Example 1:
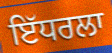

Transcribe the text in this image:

ਇੱਧਰਲਾ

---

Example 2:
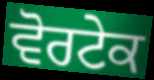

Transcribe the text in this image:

ਵੋਰਟੇਕ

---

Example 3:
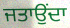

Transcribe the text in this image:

ਜਤਾਉਂਦਾ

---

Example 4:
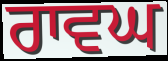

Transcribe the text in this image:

ਰਾਵਘ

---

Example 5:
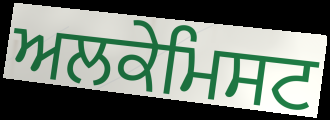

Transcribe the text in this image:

ਅਲਕੇਮਿਸਟ